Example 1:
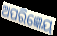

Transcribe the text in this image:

ଅପରିଜ୍ଞେୟ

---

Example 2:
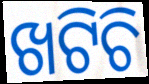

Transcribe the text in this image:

ଖଟିଚି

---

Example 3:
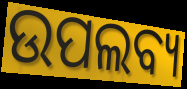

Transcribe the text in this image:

ଉପଲବ୍ୟ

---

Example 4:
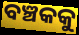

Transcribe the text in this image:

ବଞ୍ଚକକୁ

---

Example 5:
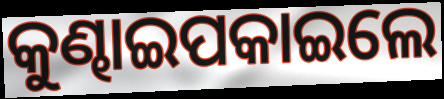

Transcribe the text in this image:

କୁଣ୍ଢାଇପକାଇଲେ